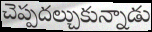
చెప్పదల్చుకున్నాడు